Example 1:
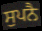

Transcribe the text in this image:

ਸੁਪਨੈ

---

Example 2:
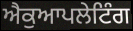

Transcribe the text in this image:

ਐਕੁਆਪਲੇਟਿੰਗ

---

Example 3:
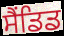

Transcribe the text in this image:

ਸੈਂਡਿਡ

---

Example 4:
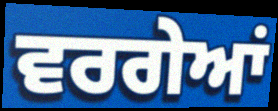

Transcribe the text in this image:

ਵਰਗੇਆਂ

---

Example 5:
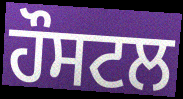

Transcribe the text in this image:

ਹੌਸਟਲ